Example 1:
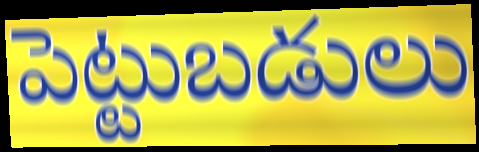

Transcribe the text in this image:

పెట్టుబడులు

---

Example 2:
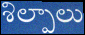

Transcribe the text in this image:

శిల్పాలు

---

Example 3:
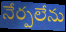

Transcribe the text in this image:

నేర్పలేను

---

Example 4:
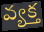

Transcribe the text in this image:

వ్యక్త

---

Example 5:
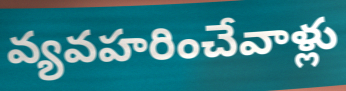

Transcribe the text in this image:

వ్యవహరించేవాళ్లు